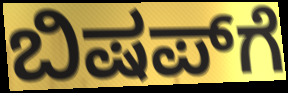
ಬಿಷಪ್‌ಗೆ